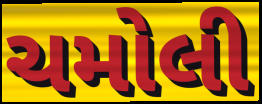
ચમોલી